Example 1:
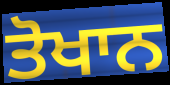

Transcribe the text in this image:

ਤੋਖਾਨ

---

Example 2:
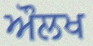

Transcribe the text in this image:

ਔਲਖ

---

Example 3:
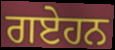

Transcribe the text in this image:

ਗਏਹਨ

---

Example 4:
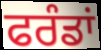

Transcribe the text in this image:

ਫਰੰਡਾਂ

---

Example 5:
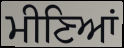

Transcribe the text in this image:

ਮੀਣਿਆਂ